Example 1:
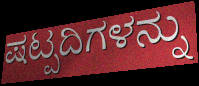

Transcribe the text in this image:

ಷಟ್ಪದಿಗಳನ್ನು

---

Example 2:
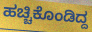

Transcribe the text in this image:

ಹಚ್ಚಿಕೊಂಡಿದ್ದ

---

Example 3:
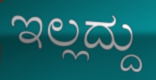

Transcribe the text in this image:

ಇಲ್ಲದ್ದು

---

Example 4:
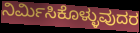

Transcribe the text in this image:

ನಿರ್ಮಿಸಿಕೊಳ್ಳುವುದರ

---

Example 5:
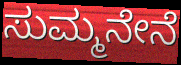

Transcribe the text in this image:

ಸುಮ್ಮನೇನೆ